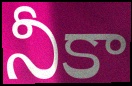
నీకా